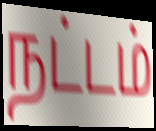
நட்டம்